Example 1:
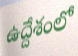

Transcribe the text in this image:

ఉద్దేశంలో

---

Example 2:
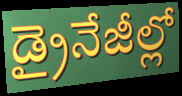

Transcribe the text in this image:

డ్రైనేజీల్లో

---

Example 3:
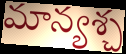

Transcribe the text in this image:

మాన్యశ్చ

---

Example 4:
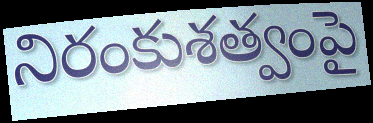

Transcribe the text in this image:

నిరంకుశత్వంపై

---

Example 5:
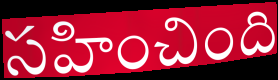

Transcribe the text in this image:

సహించింది